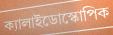
ক্যালাইডোস্কোপিক